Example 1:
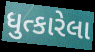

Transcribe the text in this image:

ધુત્કારેલા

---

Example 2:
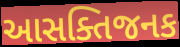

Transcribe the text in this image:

આસક્તિજનક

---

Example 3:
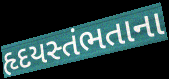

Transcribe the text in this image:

હૃદયસ્તંભતાના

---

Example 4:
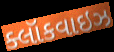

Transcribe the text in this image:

ક્લૉકવાઇઝ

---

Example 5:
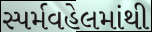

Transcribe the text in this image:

સ્પર્મવહેલમાંથી